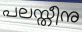
പലസ്തീനു